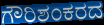
ಗೌರಿಶಂಕರದ